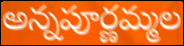
అన్నపూర్ణమ్మల